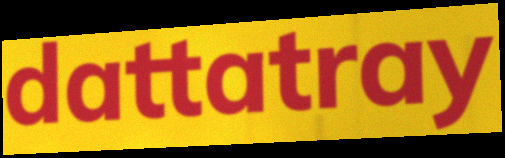
dattatray